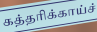
கத்தரிக்காய்ச்